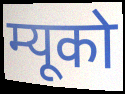
म्यूको